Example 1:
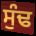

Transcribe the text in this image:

ਸੁੰਢ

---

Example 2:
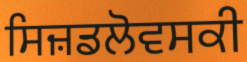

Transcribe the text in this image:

ਸਿਜ਼ਡਲੋਵਸਕੀ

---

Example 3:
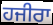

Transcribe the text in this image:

ਹਜੀਰਾ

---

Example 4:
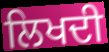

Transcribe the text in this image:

ਲਿਖਦੀ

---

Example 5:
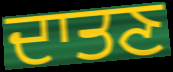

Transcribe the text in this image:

ਦਾਤਣ